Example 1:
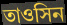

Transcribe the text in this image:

তাওসিন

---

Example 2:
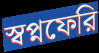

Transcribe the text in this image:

স্বপ্নফেরি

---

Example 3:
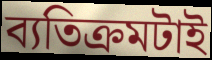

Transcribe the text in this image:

ব্যতিক্রমটাই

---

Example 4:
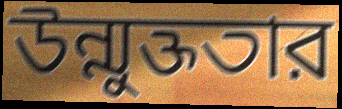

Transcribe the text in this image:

উন্মুক্ততার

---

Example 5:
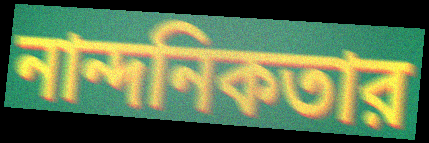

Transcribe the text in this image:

নান্দনিকতার